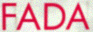
FADA